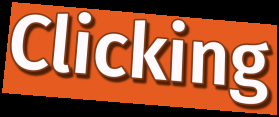
Clicking